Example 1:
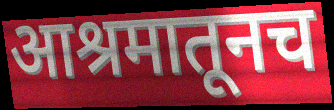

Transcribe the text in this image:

आश्रमातूनच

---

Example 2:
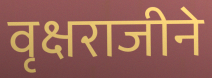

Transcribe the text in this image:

वृक्षराजीने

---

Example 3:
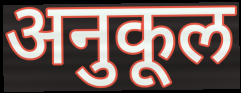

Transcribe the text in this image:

अनुकूल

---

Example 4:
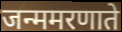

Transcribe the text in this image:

जन्ममरणाते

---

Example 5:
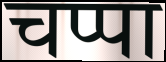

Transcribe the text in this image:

चप्पा